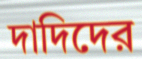
দাদিদের